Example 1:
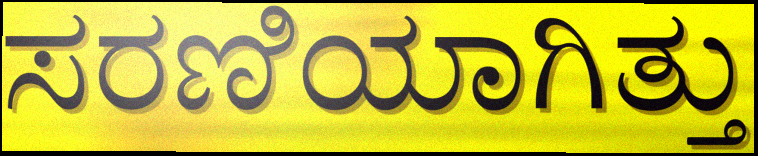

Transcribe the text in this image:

ಸರಣಿಯಾಗಿತ್ತು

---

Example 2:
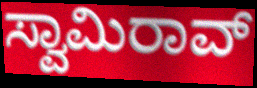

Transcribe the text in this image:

ಸ್ವಾಮಿರಾವ್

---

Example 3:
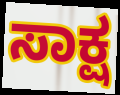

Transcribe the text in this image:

ಸಾಕ್ಷ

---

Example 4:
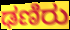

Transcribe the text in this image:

ಢಣಿರು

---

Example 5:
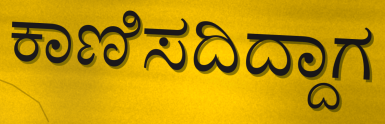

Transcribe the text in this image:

ಕಾಣಿಸದಿದ್ದಾಗ